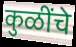
कुळींचे